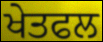
ਖੇਤਫਲ